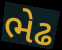
ભેઢ